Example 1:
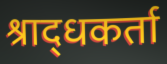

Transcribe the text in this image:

श्राद्धकर्ता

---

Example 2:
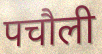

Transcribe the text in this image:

पचौली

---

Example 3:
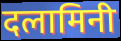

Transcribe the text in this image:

दलामिनी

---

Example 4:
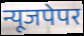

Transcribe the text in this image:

न्‍यूजपेपर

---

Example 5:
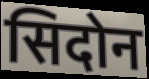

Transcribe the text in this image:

सिदोन